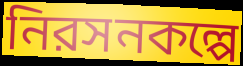
নিরসনকল্পে